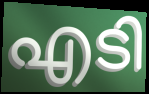
എടി